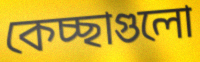
কেচ্ছাগুলো